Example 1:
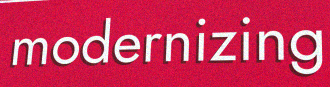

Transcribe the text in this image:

modernizing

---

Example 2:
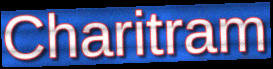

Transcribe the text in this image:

Charitram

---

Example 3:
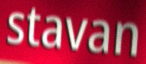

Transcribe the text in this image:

stavan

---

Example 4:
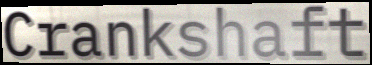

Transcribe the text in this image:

Crankshaft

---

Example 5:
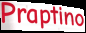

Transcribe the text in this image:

Praptino